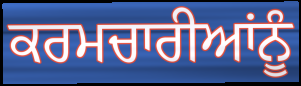
ਕਰਮਚਾਰੀਆਂਨੂੰ